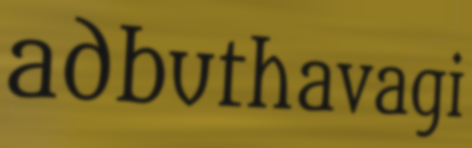
adbuthavagi